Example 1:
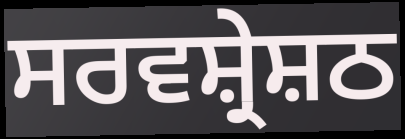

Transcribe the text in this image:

ਸਰਵਸ਼੍ਰੇਸ਼ਠ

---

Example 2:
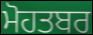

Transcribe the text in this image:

ਮੋਹਤਬਰ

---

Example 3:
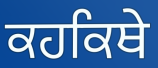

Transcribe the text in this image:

ਕਹਕਿਥੇ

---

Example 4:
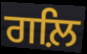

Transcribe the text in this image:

ਗਲ਼ਿ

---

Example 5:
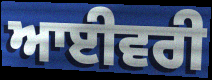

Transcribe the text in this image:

ਆਈਵਰੀ